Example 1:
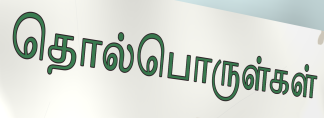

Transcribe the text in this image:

தொல்பொருள்கள்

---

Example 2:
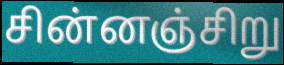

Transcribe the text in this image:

சின்னஞ்சிறு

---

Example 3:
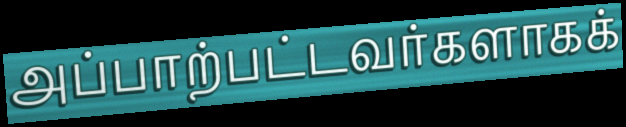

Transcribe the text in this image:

அப்பாற்பட்டவர்களாகக்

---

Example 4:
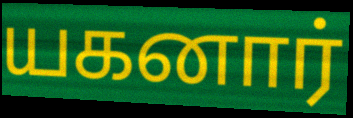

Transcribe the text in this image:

யகனார்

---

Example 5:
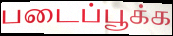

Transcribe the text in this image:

படைப்பூக்க